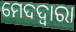
ମେଦଦ୍ଵାରା